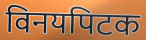
विनयपिटक